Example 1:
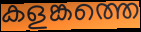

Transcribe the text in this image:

കളങ്കത്തെ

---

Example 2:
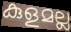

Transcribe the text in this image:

കുളമല്ല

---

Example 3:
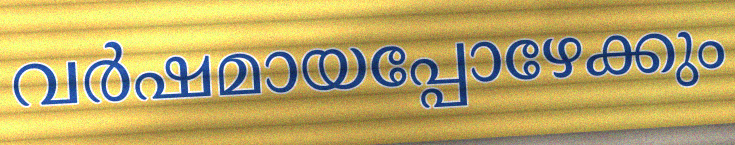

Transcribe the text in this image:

വർഷമായപ്പോഴേക്കും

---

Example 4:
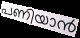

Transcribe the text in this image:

പണിയാൻ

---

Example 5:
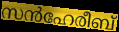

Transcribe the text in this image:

സൻഹേരീബ്